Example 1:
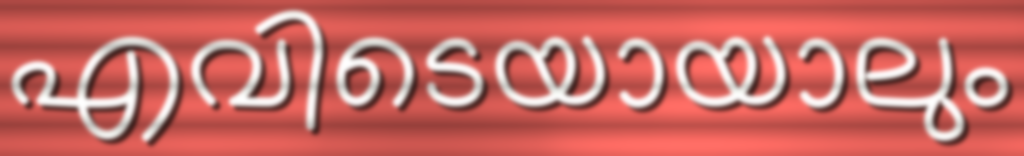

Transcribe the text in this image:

എവിടെയായാലും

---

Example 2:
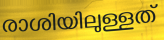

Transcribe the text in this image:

രാശിയിലുള്ളത്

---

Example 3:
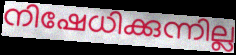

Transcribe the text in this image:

നിഷേധിക്കുന്നില്ല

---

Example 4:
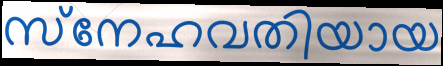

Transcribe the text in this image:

സ്‌നേഹവതിയായ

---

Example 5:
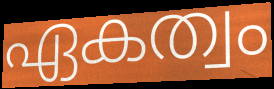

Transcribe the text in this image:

ഏകത്വം